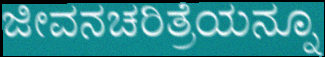
ಜೀವನಚರಿತ್ರೆಯನ್ನೂ